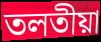
তলতীয়া